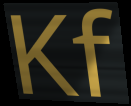
Kf